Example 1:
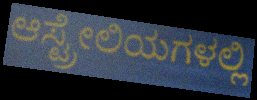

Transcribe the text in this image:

ಆಸ್ಟ್ರೇಲಿಯಗಳಲ್ಲಿ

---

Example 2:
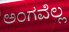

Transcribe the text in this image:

ಅಂಗವೆಲ್ಲ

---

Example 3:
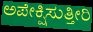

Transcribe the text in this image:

ಅಪೇಕ್ಷಿಸುತ್ತೀರಿ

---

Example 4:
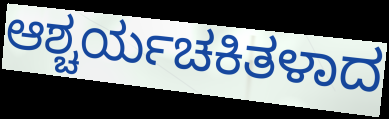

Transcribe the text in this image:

ಆಶ್ಚರ್ಯಚಕಿತಳಾದ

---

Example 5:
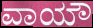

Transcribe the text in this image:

ವಾಯೌ